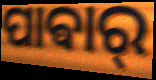
ପାଵାର୍